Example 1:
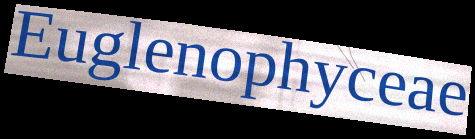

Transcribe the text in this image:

Euglenophyceae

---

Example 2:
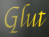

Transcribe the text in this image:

Glut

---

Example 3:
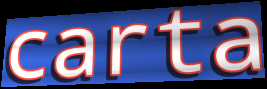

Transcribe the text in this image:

carta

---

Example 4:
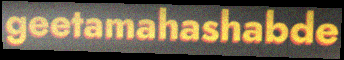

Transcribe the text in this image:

geetamahashabde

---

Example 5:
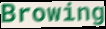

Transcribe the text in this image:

Browing